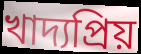
খাদ্যপ্রিয়